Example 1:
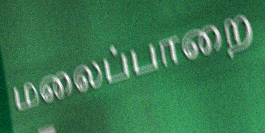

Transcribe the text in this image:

மலைப்பாறை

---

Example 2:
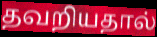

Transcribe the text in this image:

தவறியதால்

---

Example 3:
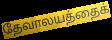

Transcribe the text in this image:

தேவாலயத்தைக்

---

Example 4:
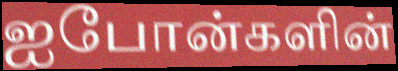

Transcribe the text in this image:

ஐபோன்களின்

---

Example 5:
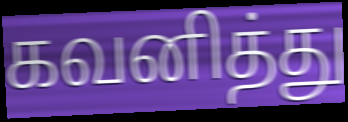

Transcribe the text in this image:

கவனித்து